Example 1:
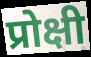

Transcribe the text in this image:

प्रोक्षी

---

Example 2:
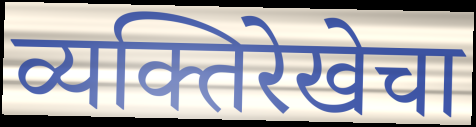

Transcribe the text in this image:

व्यक्तिरेखेचा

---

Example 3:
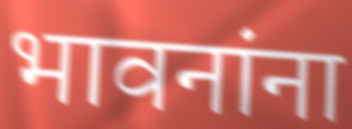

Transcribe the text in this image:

भावनांना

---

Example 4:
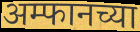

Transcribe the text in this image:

अम्फानच्या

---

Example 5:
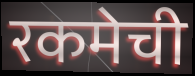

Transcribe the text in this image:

रकमेची